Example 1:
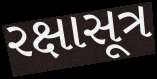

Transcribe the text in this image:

રક્ષાસૂત્ર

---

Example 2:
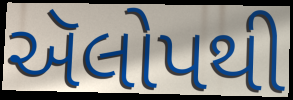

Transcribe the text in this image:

ઍલોપથી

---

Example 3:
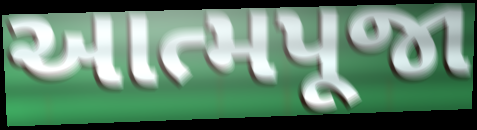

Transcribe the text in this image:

આત્મપૂજા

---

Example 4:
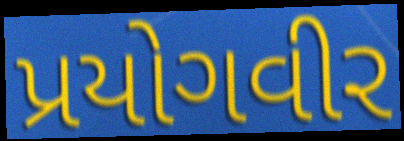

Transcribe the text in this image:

પ્રયોગવીર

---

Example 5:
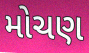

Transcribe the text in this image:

મોચણ